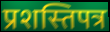
प्रशस्तिपत्र